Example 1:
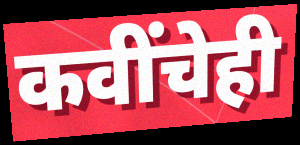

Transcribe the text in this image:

कवींचेही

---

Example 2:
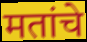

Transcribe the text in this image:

मतांचे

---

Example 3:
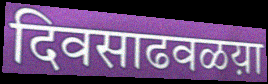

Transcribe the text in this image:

दिवसाढवळय़ा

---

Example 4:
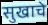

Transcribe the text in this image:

सुखाचे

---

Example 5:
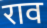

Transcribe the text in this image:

राव